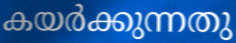
കയർക്കുന്നതു